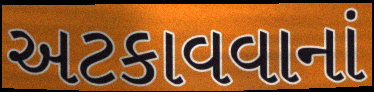
અટકાવવાનાં